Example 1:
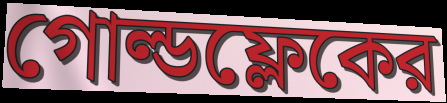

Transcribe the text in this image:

গোল্ডফ্লেকের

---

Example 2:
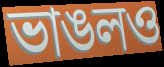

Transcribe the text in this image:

ভাঙলও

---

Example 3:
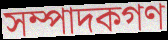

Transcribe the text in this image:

সম্পাদকগণ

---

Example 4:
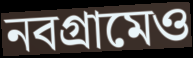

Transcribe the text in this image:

নবগ্রামেও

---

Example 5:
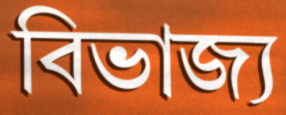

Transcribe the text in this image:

বিভাজ্য